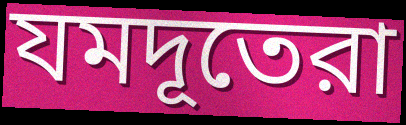
যমদূতেরা